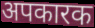
अपकारक